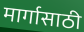
मार्गासाठी